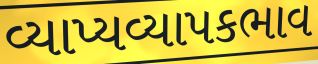
વ્યાપ્યવ્યાપકભાવ